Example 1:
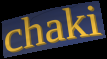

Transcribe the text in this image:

chaki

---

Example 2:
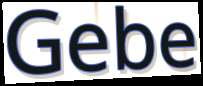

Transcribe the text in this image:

Gebe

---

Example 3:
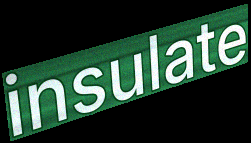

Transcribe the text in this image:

insulate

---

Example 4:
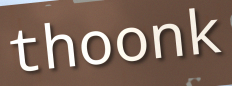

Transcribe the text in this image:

thoonk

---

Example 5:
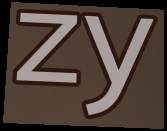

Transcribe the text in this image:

zy